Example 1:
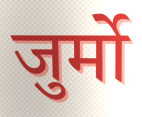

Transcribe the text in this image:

जुर्मो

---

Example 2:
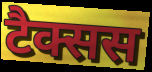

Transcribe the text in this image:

टैक्सस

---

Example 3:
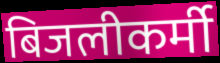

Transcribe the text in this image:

बिजलीकर्मी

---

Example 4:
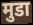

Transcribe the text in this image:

मुडा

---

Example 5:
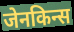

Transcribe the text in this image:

जेनकिन्स